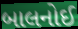
બાલનોઈ